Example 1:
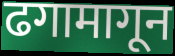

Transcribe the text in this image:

ढगामागून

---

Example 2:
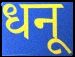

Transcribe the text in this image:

धनू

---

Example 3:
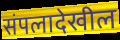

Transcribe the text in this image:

संपलादेखील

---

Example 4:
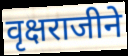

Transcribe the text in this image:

वृक्षराजीने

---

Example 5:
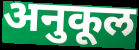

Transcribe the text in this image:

अनुकूल